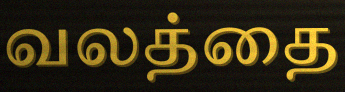
வலத்தை